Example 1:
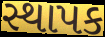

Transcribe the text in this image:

સ્થાપક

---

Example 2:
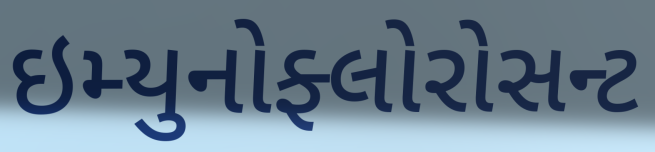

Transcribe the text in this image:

ઇમ્યુનોફ્લોરોસન્ટ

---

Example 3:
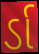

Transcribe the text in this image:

ર્ડા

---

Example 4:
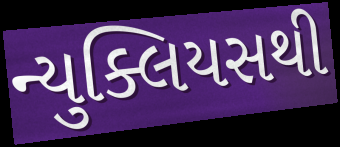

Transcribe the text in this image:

ન્યુક્લિયસથી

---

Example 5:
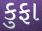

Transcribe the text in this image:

કુફા